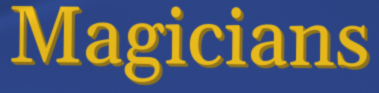
Magicians